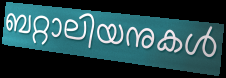
ബറ്റാലിയനുകൾ